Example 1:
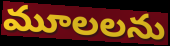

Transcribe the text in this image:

మూలలను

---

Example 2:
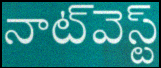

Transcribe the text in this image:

నాట్‌వెస్ట్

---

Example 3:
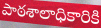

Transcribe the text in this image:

పాఠశాలాధికారికి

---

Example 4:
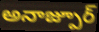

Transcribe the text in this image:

అనాజ్పూర్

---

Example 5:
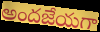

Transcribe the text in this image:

అందజేయగా